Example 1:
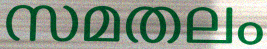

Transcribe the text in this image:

സമതലം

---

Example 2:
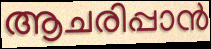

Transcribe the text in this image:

ആചരിപ്പാൻ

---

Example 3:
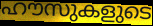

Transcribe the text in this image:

ഹൗസുകളുടെ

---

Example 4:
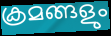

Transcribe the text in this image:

ക്രമങ്ങളും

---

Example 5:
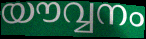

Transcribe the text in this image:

യൗവ്വനം